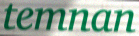
temnan